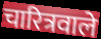
चारित्रवाले